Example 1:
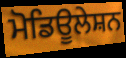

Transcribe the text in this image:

ਮੋਡਿਊਲੇਸ਼ਨ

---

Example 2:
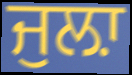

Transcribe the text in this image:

ਜੁਲ਼ਾ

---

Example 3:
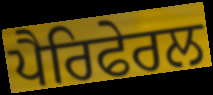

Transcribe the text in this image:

ਪੈਰਿਫੇਰਲ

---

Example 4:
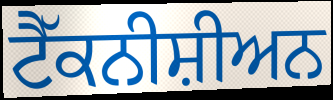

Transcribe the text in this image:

ਟੈੱਕਨੀਸ਼ੀਅਨ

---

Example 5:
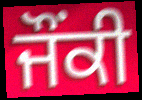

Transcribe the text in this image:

ਜੌਂਕੀ